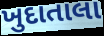
ખુદાતાલા